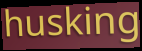
husking